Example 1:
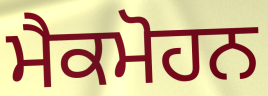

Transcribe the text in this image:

ਮੈਕਮੋਹਨ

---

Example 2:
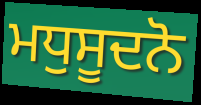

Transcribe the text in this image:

ਮਧੁਸੂਦਨੋ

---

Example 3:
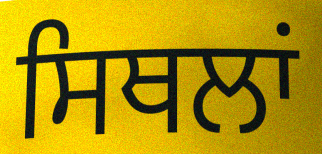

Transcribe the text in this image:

ਸਿਥਲਾਂ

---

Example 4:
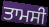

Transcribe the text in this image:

ਤਾਮਸੀ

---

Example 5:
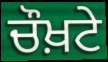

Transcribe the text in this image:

ਚੌਖ਼ਟੇ